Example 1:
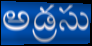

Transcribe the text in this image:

అడ్రసు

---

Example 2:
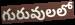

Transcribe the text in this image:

గురువులలో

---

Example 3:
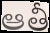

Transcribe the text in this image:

ఆతీ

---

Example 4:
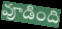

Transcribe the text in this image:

వూడింది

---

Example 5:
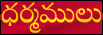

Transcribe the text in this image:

ధర్మములు